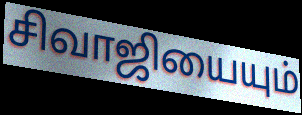
சிவாஜியையும்